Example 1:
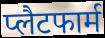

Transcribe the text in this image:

प्लैटफार्म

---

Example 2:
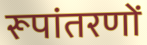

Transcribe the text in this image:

रूपांतरणों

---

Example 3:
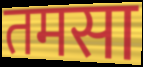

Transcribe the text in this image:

तमसा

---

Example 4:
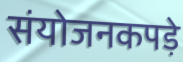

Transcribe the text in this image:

संयोजनकपड़े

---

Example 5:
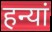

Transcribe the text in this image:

हन्यां